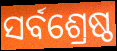
ସର୍ବଶ୍ରେଷ୍ଠ